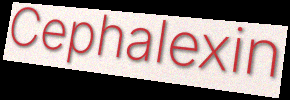
Cephalexin